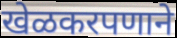
खेळकरपणाने